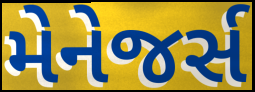
મેનેજર્સ